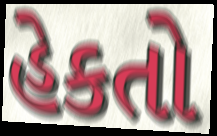
હેકતો